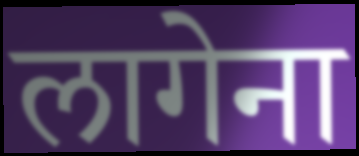
लागेना